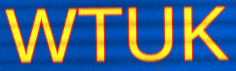
WTUK